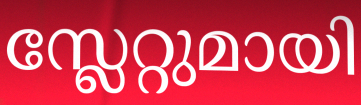
സ്ലേറ്റുമായി